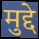
मुद्दे